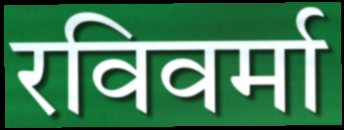
रविवर्मा